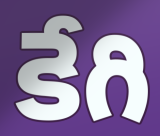
కేగి